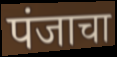
पंजाचा